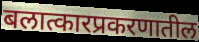
बलात्कारप्रकरणातील